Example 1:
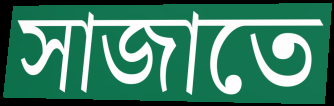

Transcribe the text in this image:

সাজাতে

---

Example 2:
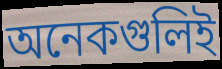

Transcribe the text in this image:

অনেকগুলিই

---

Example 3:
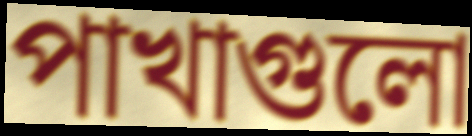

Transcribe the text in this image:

পাখাগুলো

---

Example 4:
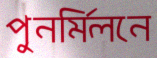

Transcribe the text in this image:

পুনর্মিলনে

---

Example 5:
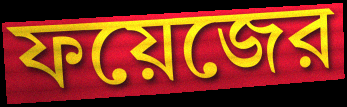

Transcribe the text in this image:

ফয়েজের